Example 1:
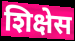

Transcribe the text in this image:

शिक्षेस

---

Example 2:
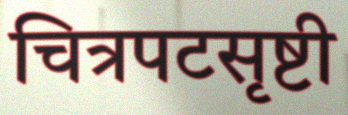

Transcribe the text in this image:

चित्रपटसृष्टी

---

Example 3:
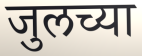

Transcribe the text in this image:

जुलच्या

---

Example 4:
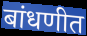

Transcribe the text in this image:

बांधणीत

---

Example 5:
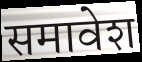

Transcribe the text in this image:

समावेश